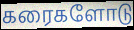
கரைகளோடு